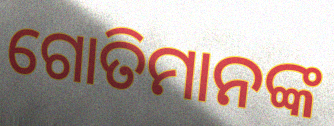
ଗୋତିମାନଙ୍କ